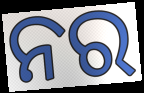
ନର